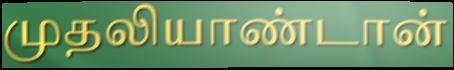
முதலியாண்டான்